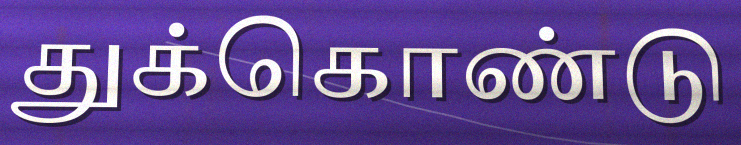
துக்கொண்டு